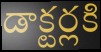
డాక్టర్లకి